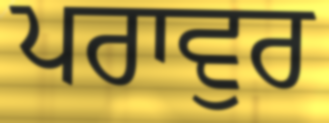
ਪਰਾਵੁਰ